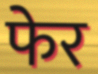
फेर